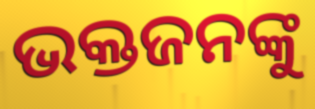
ଭକ୍ତଜନଙ୍କୁ